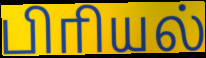
பிரியல்